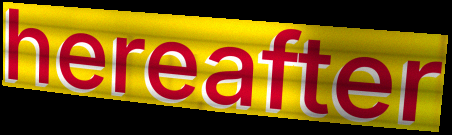
hereafter